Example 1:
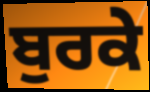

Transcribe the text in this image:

ਬੁਰਕੇ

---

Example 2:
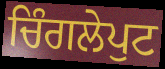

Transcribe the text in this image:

ਚਿੰਗਲੇਪੁਟ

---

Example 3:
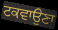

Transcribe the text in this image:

ਟਕਵਾਉਣਾ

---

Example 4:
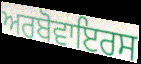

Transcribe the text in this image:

ਅਰਬੋਵਾਇਰਸ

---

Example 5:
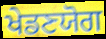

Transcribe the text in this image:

ਖੇਡਣਯੋਗ